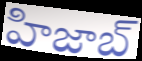
హిజాబ్